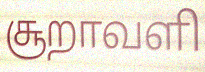
சூறாவளி